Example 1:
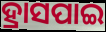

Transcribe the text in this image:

ହ୍ରାସପାଇ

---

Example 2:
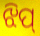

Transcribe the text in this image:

ଝିପ୍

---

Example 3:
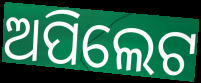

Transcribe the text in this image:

ଅପିଲେଟ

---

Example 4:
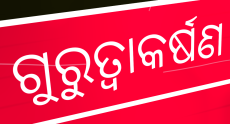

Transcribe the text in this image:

ଗୁରୁତ୍ଵାକର୍ଷଣ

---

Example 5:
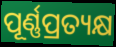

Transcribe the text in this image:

ପୂର୍ଣ୍ଣପ୍ରତ୍ୟକ୍ଷ